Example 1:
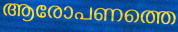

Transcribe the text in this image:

ആരോപണത്തെ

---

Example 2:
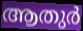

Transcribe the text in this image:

ആതുർ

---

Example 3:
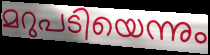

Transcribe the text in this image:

മറുപടിയെന്നും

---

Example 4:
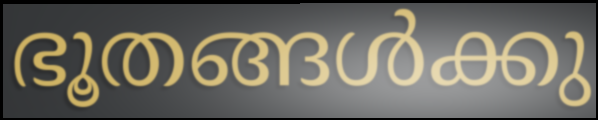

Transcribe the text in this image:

ഭൂതങ്ങൾക്കു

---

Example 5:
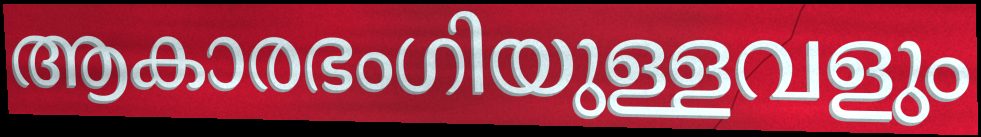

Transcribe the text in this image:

ആകാരഭംഗിയുള്ളവളും